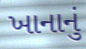
ખાનાનું